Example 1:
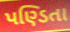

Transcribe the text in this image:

પણ્ડિતા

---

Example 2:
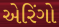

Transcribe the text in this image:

એરિંગો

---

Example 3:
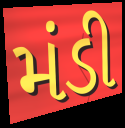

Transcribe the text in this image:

મંડી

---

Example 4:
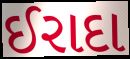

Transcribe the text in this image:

ઈરાદા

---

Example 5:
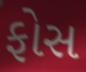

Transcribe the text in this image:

ફોસ